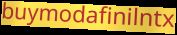
buymodafinilntx